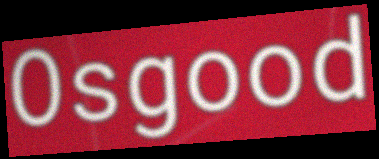
Osgood